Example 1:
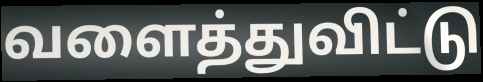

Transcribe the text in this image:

வளைத்துவிட்டு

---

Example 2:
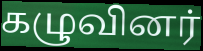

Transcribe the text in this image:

கழுவினர்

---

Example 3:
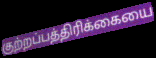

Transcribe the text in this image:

குற்றப்பத்திரிக்கையை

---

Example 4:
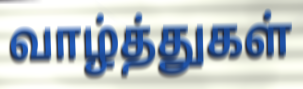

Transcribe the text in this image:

வாழ்த்துகள்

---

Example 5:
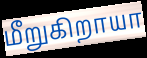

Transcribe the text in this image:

மீறுகிறாயா